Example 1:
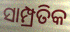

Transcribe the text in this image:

ସାମ୍ପ୍ରତିକ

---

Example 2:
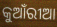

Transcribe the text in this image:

କୁଆଁରୀଆ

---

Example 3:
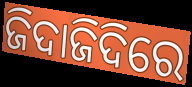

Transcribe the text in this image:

ଜିଦାଜିଦିରେ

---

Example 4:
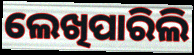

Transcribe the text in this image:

ଲେଖିପାରିଲି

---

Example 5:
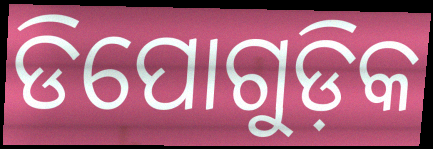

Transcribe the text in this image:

ଡିପୋଗୁଡ଼ିକ